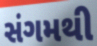
સંગમથી